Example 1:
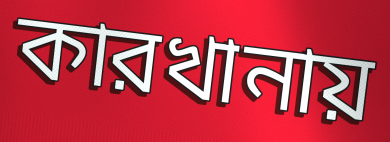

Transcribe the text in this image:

কারখানায়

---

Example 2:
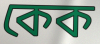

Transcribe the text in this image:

কেক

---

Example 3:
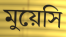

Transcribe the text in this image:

মুয়েসি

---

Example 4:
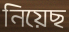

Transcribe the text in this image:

নিয়েছ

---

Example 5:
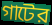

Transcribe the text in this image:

গাটের